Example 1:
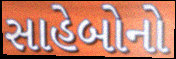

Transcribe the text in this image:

સાહેબોનો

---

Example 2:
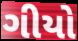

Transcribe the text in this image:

ગીયો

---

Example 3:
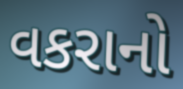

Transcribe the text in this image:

વકરાનો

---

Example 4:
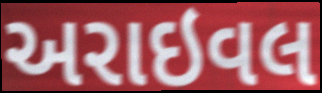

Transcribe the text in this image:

અરાઇવલ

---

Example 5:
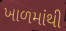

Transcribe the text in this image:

ખાળમાંથી